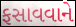
ફસાવવાને